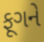
ફૂગને